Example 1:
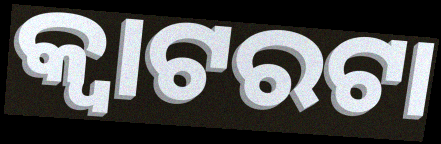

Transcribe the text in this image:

କ୍ଵାଟରଟା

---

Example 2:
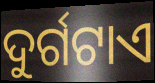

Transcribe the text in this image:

ଦୁର୍ଗଟାଏ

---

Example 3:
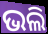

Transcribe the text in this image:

ଭଲି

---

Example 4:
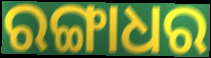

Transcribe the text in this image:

ରଙ୍ଗାଧର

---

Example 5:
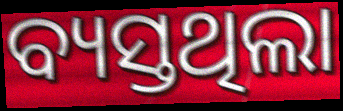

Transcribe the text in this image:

ବ୍ୟସ୍ତଥିଲା